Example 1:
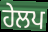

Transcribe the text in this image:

ਹੇਲਪ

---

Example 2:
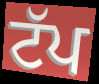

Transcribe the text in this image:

ਟੱਪ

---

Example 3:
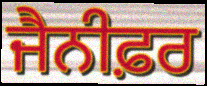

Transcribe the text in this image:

ਜੈਨੀਫ਼ਰ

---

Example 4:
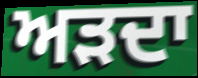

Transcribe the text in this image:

ਅੜਦਾ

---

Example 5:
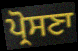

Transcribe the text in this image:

ਪ੍ਰੋਸਣਾ